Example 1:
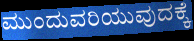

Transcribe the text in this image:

ಮುಂದುವರಿಯುವುದಕ್ಕೆ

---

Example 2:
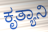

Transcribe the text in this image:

ಕೃತ್ಯಾನಿ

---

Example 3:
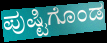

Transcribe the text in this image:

ಪುಷ್ಟಿಗೊಂಡ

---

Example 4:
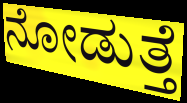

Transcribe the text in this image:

ನೋಡುತ್ತೆ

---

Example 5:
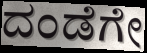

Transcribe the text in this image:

ದಂಡೆಗೇ